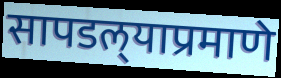
सापडल्याप्रमाणे